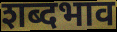
शब्दभाव